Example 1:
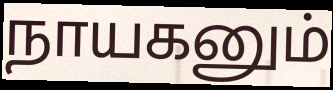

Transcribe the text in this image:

நாயகனும்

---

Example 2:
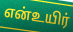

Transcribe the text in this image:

என்உயிர்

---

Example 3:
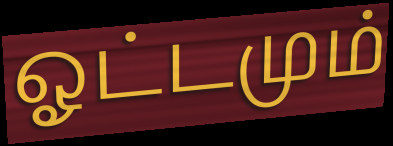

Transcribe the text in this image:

ஓட்டமும்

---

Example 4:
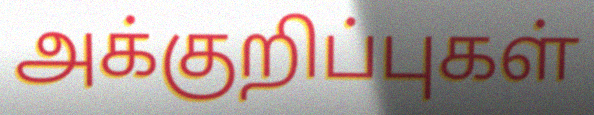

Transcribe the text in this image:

அக்குறிப்புகள்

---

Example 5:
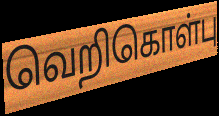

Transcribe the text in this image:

வெறிகொள்பு